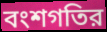
বংশগতির